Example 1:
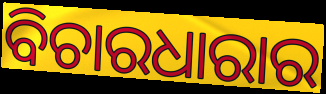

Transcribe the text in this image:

ବିଚାରଧାରାର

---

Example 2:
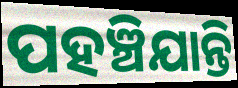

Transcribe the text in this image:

ପହଞ୍ଚିଯାନ୍ତି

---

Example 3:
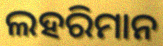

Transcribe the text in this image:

ଲହରିମାନ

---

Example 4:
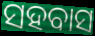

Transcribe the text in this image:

ସହବାସ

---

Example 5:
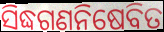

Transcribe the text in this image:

ସିଦ୍ଧଗଣନିଷେବିତ